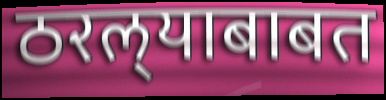
ठरल्याबाबत